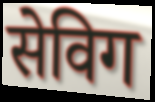
सेविग